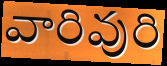
వారివురి